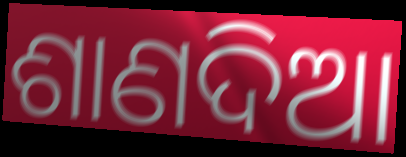
ଶାଣଦିଆ